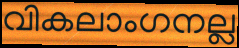
വികലാംഗനല്ല